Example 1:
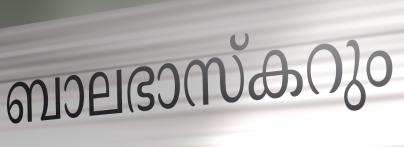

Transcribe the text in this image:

ബാലഭാസ്കറും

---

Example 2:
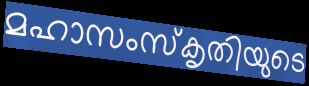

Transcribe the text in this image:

മഹാസംസ്കൃതിയുടെ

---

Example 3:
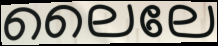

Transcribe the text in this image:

ലൈലേ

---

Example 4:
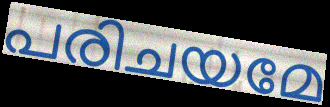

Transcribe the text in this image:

പരിചയമേ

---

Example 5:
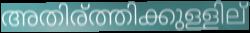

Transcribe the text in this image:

അതിര്ത്തിക്കുള്ളില്